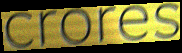
crores